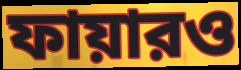
ফায়ারও